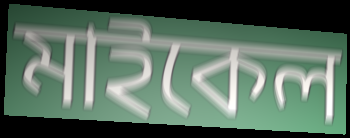
মাইকেল